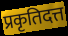
प्रकृतिदत्त